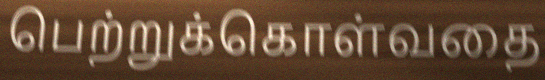
பெற்றுக்கொள்வதை